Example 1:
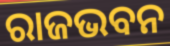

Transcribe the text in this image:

ରାଜଭବନ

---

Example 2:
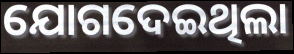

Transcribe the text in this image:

ଯୋଗଦେଇଥିଲା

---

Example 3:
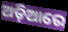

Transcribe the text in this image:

ଅଡ଼ିଆରେ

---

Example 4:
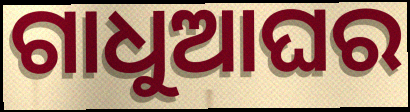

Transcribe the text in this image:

ଗାଧୁଆଘର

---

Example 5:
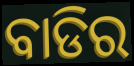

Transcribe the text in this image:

ବାଡିର